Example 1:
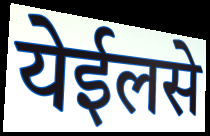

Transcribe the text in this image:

येईलसे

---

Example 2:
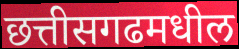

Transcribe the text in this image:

छत्तीसगढमधील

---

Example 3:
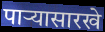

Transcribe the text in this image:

पाऱ्यासारखे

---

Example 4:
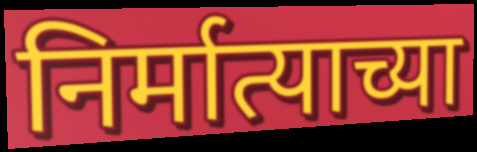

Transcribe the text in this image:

निर्मात्याच्या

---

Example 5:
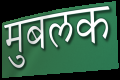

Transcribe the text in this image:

मुबलक